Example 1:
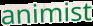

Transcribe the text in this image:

animist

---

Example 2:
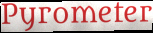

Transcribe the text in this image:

Pyrometer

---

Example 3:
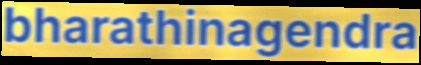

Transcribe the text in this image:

bharathinagendra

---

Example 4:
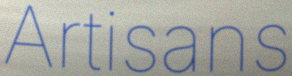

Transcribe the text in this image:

Artisans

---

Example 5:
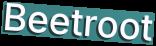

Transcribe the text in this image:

Beetroot